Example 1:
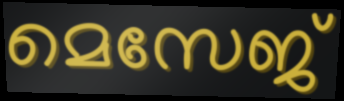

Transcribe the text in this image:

മെസേജ്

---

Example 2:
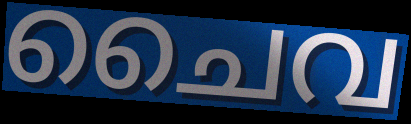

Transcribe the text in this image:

ചൈവ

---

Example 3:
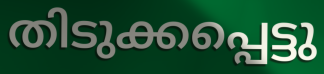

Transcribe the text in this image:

തിടുക്കപ്പെട്ടു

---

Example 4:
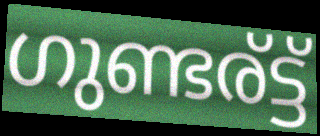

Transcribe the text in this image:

ഗുണ്ടര്ട്ട്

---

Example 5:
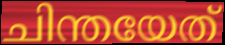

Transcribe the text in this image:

ചിന്തയേത്